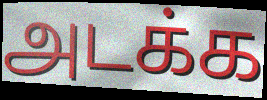
அடக்க